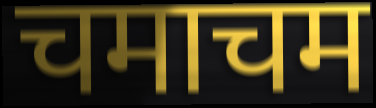
चमाचम